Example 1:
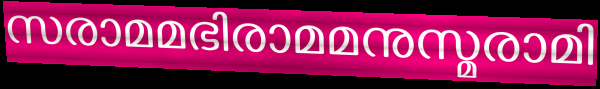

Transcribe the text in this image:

സരാമമഭിരാമമനുസ്മരാമി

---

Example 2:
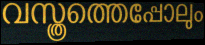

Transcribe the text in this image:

വസ്ത്രത്തെപ്പോലും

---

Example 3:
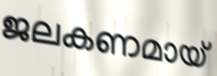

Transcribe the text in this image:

ജലകണമായ്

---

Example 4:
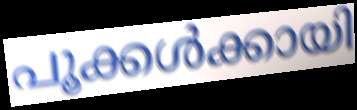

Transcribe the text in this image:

പൂക്കൾക്കായി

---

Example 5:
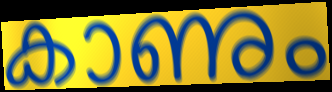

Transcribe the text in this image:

കാണും